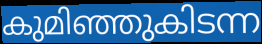
കുമിഞ്ഞുകിടന്ന